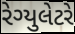
રેગ્યુલેટરે